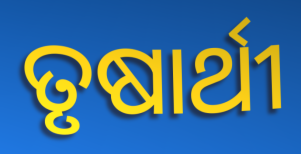
ତୃଷାର୍ଥୀ